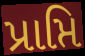
પ્રાપ્તિ